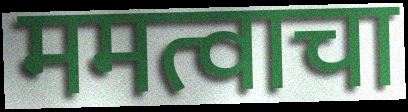
ममत्वाचा